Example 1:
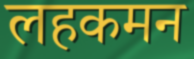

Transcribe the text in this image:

लहकमन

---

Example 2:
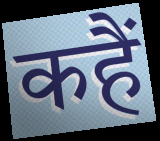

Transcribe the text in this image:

कहैं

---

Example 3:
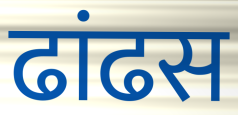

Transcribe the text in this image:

ढांढस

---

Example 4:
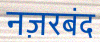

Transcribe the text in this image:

नज़रबंद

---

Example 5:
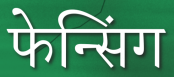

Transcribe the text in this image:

फेन्सिंग